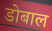
डोबाल